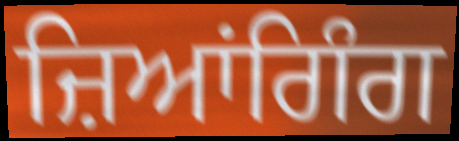
ਜ਼ਿਆਂਗਿੰਗ